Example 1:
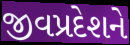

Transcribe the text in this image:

જીવપ્રદેશને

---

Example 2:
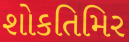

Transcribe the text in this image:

શોકતિમિર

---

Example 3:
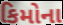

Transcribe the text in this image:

કિમોના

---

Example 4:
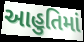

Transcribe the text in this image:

આહુતિમાં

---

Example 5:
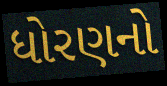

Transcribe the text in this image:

ધોરણનો